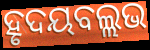
ହୃଦୟବଲ୍ଲଭ